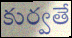
కుర్వతే